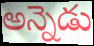
అన్నెడు